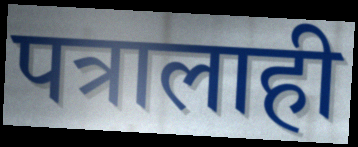
पत्रालाही